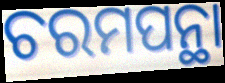
ଚରମପନ୍ଥା